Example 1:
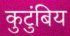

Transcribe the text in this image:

कुटुंबिय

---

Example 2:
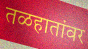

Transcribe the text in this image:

तळहातांवर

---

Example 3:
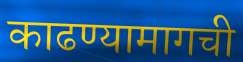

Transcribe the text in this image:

काढण्यामागची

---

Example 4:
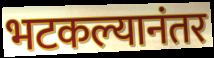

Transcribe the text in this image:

भटकल्यानंतर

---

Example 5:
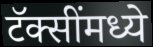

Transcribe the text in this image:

टॅक्सींमध्ये